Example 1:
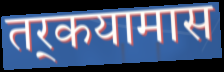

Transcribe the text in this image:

तर्कयामास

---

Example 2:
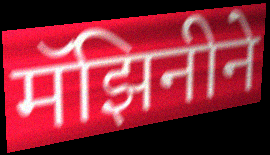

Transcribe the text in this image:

मॅझिनीने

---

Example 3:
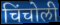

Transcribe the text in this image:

चिंचोली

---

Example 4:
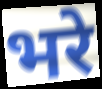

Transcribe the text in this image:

भरे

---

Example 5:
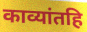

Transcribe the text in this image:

काव्यांतहि